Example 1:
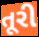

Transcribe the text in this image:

તૂરી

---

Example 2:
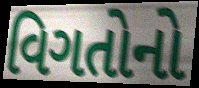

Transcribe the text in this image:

વિગતોનો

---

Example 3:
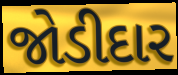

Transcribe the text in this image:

જોડીદાર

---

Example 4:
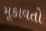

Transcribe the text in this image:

મૂકાવતો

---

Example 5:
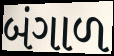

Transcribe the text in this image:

બંગાળ